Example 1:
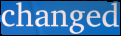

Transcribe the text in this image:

changed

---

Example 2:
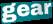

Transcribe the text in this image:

gear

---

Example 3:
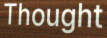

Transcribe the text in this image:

Thought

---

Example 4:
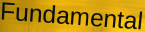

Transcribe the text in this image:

Fundamental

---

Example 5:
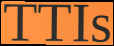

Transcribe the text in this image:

TTIs